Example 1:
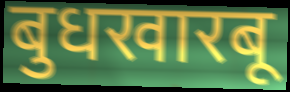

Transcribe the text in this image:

बुधखारबू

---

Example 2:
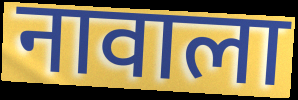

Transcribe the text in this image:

नावाला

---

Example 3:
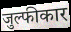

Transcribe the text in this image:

जुल्फीकार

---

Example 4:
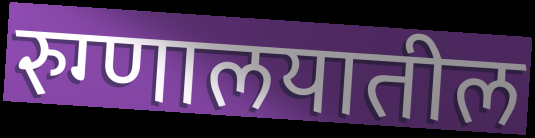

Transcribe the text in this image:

रुग्णालयातील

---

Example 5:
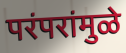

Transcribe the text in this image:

परंपरांमुळे